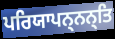
ਪਰਿਯਾਪਨ੍ਨਨ੍ਤਿ